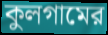
কুলগামের